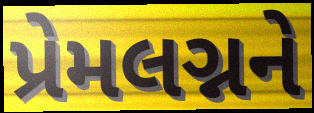
પ્રેમલગ્નને